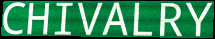
CHIVALRY